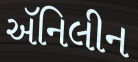
ઍનિલીન